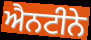
ਐਨਟੀਨੇ